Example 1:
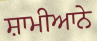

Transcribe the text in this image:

ਸ਼ਾਮੀਆਨੇ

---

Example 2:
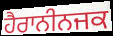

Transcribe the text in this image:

ਹੈਰਾਨੀਨਜਕ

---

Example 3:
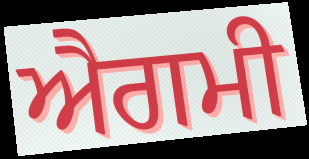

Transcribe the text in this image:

ਐਗਮੀ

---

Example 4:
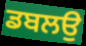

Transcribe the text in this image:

ਡਬਲਉ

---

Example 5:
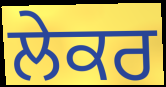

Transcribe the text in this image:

ਲੇਕਰ